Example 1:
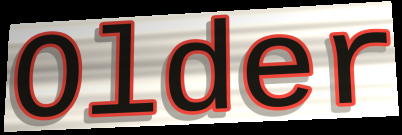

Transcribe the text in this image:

Older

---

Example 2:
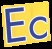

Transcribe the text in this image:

Ec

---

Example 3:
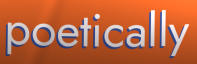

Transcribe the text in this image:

poetically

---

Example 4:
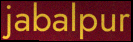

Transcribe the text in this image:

jabalpur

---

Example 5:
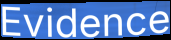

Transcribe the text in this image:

Evidence